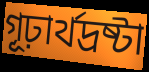
গূঢ়ার্থদ্রষ্টা